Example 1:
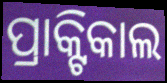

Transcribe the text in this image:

ପ୍ରାକ୍ଟିକାଲ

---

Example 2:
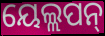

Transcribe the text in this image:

ୟେଲ୍ଲପନ୍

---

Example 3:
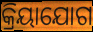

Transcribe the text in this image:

କ୍ରିୟାଯୋଗ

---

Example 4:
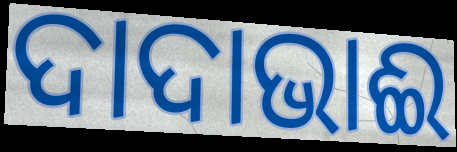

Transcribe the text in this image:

ଦାଦାଭାଈ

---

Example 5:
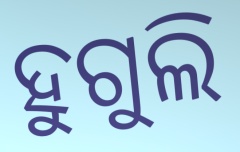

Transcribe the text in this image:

ହୁଗୁଲି